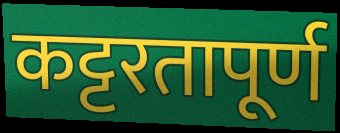
कट्टरतापूर्ण